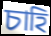
চাহি